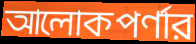
আলোকপর্ণার